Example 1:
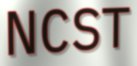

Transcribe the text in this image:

NCST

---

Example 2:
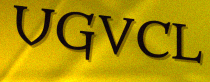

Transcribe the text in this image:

UGVCL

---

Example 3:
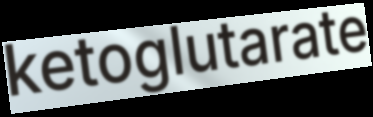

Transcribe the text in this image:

ketoglutarate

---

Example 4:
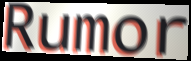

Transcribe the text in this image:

Rumor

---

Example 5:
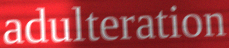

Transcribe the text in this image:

adulteration